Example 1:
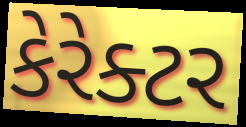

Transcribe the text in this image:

કેરેક્ટર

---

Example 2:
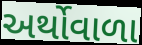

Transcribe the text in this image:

અર્થોવાળા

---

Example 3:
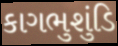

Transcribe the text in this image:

કાગભુશુંડિ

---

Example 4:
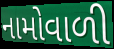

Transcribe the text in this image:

નામોવાળી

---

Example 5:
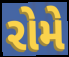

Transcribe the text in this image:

રોમે